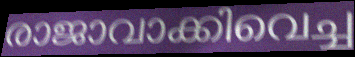
രാജാവാക്കിവെച്ച